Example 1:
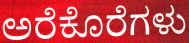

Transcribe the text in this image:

ಅರೆಕೊರೆಗಳು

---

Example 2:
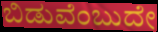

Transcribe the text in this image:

ಬಿಡುವೆಂಬುದೇ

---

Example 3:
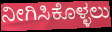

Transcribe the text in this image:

ನೀಗಿಸಿಕೊಳ್ಳಲು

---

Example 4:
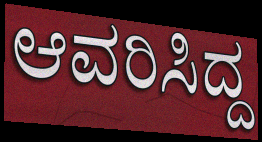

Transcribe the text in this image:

ಆವರಿಸಿದ್ದ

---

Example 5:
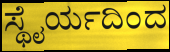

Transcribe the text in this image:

ಸ್ಥೈರ್ಯದಿಂದ